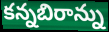
కన్నబిరాన్ను